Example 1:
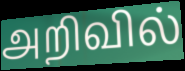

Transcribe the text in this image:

அறிவில்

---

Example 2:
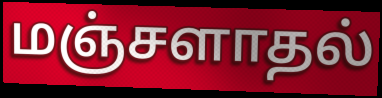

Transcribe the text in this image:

மஞ்சளாதல்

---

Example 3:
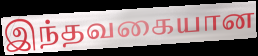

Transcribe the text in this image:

இந்தவகையான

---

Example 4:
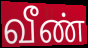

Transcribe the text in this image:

வீண்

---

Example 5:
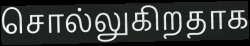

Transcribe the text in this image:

சொல்லுகிறதாக